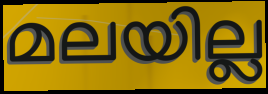
മലയില്ല